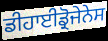
ਡੀਹਾਈਡ੍ਰੋਜੇਨੇਸ